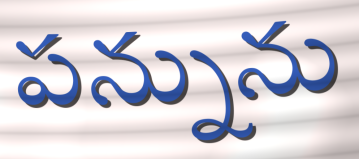
పన్నును